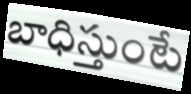
బాధిస్తుంటే